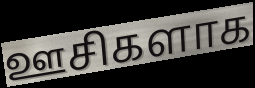
ஊசிகளாக